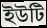
ইউটি